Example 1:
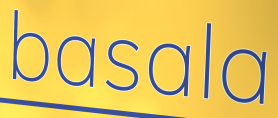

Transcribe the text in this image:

basala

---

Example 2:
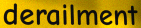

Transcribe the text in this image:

derailment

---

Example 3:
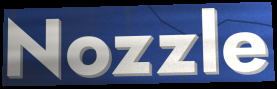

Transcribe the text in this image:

Nozzle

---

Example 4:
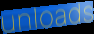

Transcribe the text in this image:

unloads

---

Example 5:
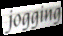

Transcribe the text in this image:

jogging